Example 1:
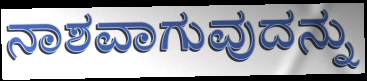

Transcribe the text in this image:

ನಾಶವಾಗುವುದನ್ನು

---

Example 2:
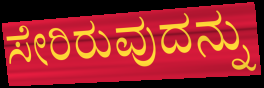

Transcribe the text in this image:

ಸೇರಿರುವುದನ್ನು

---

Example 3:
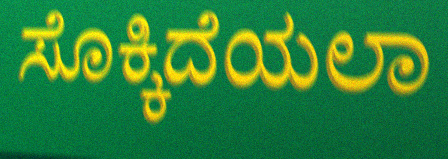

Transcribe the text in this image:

ಸೊಕ್ಕಿದೆಯಲಾ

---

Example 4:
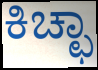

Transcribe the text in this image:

ಕಿಚ್ಛಾ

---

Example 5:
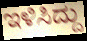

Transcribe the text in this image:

ಇಳಿಸಿದ್ದು